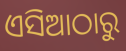
ଏସିଆଠାରୁ